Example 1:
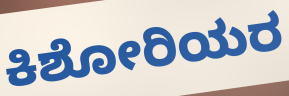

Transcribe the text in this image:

ಕಿಶೋರಿಯರ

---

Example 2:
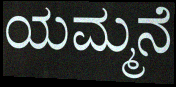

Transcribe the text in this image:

ಯಮ್ಮನೆ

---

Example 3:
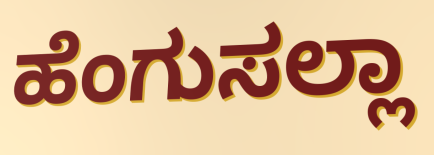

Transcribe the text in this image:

ಹೆಂಗುಸಲ್ಲಾ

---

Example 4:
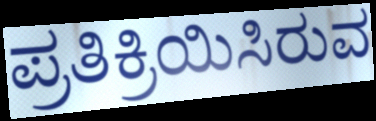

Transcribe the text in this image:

ಪ್ರತಿಕ್ರಿಯಿಸಿರುವ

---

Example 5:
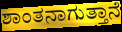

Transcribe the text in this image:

ಶಾಂತನಾಗುತ್ತಾನೆ